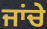
ਜਾਂਚੇ